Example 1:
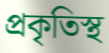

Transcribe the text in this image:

প্রকৃতিস্থ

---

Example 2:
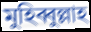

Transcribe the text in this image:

মুহিব্বুল্লাহ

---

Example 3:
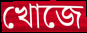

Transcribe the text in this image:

খোজে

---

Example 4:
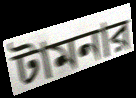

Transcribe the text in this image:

টামনার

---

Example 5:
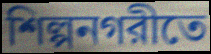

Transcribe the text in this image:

শিল্পনগরীতে